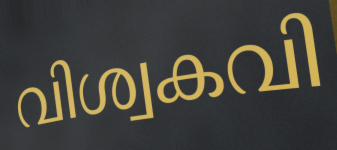
വിശ്വകവി